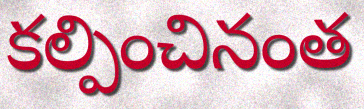
కల్పించినంత